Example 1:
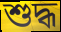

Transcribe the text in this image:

শুদ্ধ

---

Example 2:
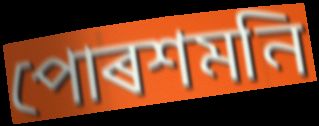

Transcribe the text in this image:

পোৰশমনি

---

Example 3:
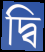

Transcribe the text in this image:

দ্বি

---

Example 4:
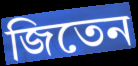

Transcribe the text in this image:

জিতেন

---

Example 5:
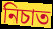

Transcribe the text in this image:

নিচাত